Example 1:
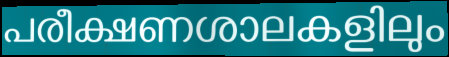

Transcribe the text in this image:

പരീക്ഷണശാലകളിലും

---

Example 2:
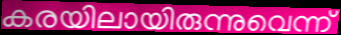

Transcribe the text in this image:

കരയിലായിരുന്നുവെന്ന്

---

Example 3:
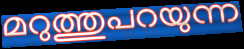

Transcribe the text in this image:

മറുത്തുപറയുന്ന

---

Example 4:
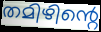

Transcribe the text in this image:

തമിഴിന്റെ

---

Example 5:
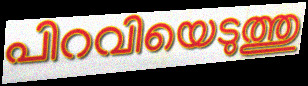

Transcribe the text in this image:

പിറവിയെടുത്തു